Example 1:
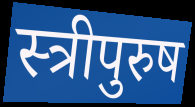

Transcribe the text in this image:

स्त्रीपुरुष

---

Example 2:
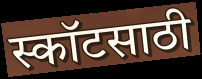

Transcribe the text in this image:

स्कॉटसाठी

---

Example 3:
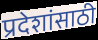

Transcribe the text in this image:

प्रदेशांसाठी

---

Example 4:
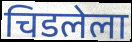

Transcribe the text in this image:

चिडलेला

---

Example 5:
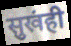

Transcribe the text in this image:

सुखंही